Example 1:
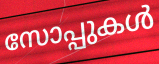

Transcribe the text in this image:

സോപ്പുകൾ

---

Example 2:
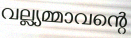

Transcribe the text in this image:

വല്ല്യമ്മാവന്റെ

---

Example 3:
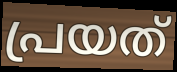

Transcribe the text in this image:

പ്രയത്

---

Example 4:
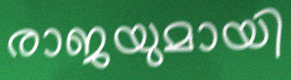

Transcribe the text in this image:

രാജയുമായി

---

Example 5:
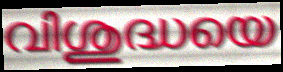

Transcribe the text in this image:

വിശുദ്ധയെ